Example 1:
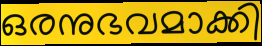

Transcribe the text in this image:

ഒരനുഭവമാക്കി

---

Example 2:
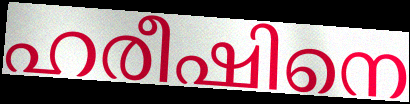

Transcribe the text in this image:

ഹരീഷിനെ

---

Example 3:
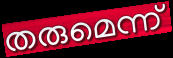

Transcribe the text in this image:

തരുമെന്ന്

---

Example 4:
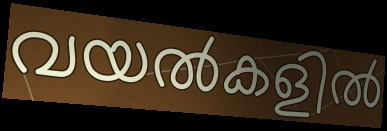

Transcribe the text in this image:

വയൽകളിൽ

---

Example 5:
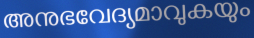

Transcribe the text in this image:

അനുഭവേദ്യമാവുകയും